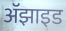
ॲझाइड